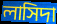
লাসিদা